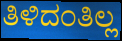
ತಿಳಿದಂತಿಲ್ಲ